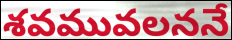
శవమువలననే